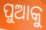
ପୁଆକୁ